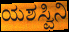
ಯಶಸ್ವಿನಿ